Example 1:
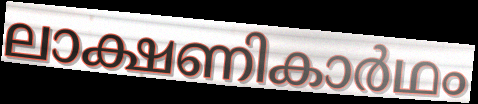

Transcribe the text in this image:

ലാക്ഷണികാർഥം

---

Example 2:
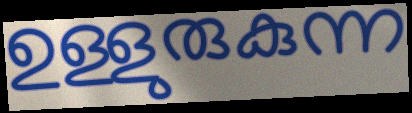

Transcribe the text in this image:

ഉള്ളുരുകുന്ന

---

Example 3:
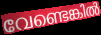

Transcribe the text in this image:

വേണ്ടെങ്കിൽ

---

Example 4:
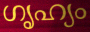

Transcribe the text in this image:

ഗൃഹ്യം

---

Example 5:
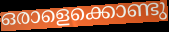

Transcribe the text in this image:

ഒരാളെക്കൊണ്ടു